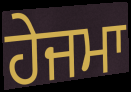
ਹੇਜਮਾ